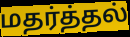
மதர்த்தல்